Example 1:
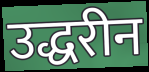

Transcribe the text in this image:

उद्धरीन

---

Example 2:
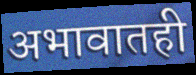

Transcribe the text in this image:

अभावातही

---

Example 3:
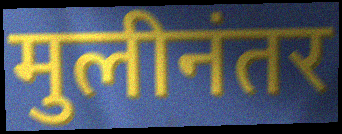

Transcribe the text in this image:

मुलीनंतर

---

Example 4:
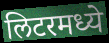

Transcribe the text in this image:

लिटरमध्ये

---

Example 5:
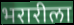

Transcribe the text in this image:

भरारीला